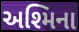
અશ્મિના